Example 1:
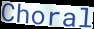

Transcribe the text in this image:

Choral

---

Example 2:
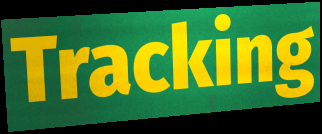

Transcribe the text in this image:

Tracking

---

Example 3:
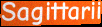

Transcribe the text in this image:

Sagittarii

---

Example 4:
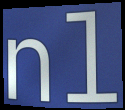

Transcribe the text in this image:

nl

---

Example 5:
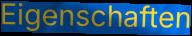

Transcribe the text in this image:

Eigenschaften